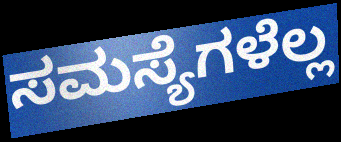
ಸಮಸ್ಯೆಗಳೆಲ್ಲ